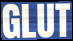
GLUT